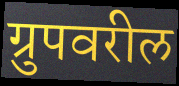
ग्रुपवरील